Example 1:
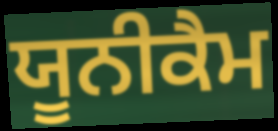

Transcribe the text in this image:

ਯੂਨੀਕੈਮ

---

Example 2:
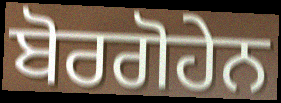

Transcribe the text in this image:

ਬੋਰਗੋਹੇਨ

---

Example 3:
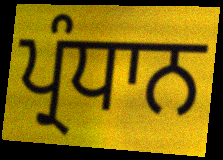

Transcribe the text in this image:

ਪ੍ਰੰਧਾਨ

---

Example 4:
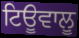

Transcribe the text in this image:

ਟਿਊਵਾਲੂ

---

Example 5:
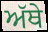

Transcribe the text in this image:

ਅੱਥੇ